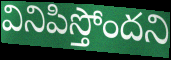
వినిపిస్తోందని